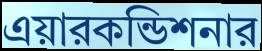
এয়ারকন্ডিশনার